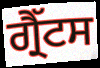
ਗ੍ਰੈੱਟਸ